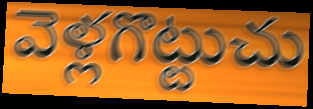
వెళ్లగొట్టుచు